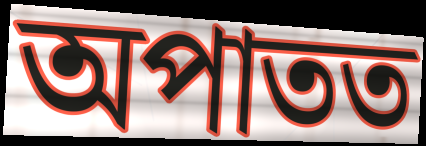
অপাতত